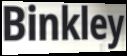
Binkley